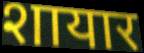
शायार